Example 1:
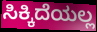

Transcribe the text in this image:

ಸಿಕ್ಕಿದೆಯಲ್ಲ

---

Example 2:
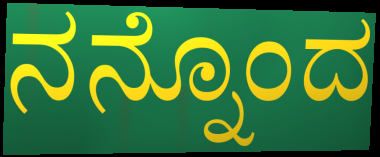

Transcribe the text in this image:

ನನ್ನೊಂದ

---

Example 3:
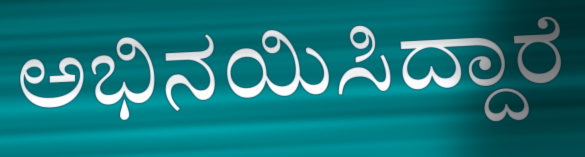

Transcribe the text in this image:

ಅಭಿನಯಿಸಿದ್ದಾರೆ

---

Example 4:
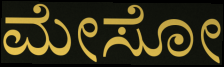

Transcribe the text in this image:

ಮೇಸೋ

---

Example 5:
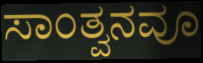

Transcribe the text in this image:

ಸಾಂತ್ವನವೂ